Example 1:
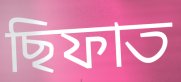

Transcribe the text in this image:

ছিফাত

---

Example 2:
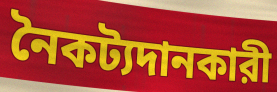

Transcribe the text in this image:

নৈকট্যদানকারী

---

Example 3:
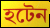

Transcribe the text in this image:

হটেন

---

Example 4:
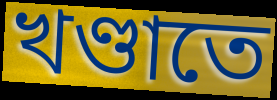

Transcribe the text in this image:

খণ্ডাতে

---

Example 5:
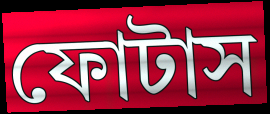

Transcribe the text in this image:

ফোটাস